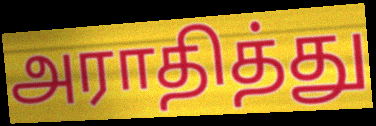
அராதித்து